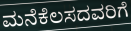
ಮನೆಕೆಲಸದವರಿಗೆ